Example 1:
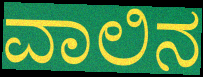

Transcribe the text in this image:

ವಾಲಿನ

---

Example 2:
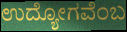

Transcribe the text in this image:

ಉದ್ಯೋಗವೆಂಬ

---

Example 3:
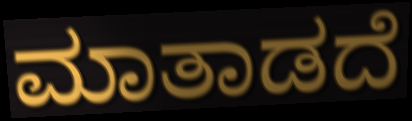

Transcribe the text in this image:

ಮಾತಾಡದೆ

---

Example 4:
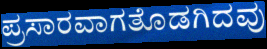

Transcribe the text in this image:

ಪ್ರಸಾರವಾಗತೊಡಗಿದವು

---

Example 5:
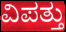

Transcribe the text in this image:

ವಿಪತ್ತು